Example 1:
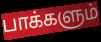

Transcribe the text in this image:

பாக்களும்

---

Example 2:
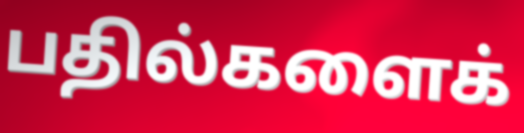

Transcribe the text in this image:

பதில்களைக்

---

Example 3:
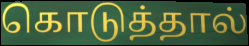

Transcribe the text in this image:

கொடுத்தால்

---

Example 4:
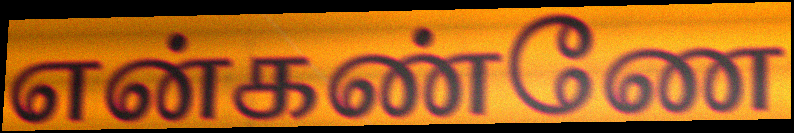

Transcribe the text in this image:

என்கண்ணே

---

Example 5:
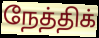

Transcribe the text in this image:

நேத்திக்